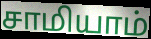
சாமியாம்